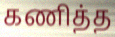
கணித்த